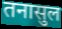
तनासुल